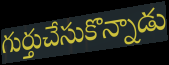
గుర్తుచేసుకొన్నాడు